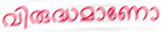
വിരുദ്ധമാണോ